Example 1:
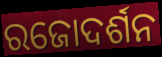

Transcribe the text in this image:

ରଜୋଦର୍ଶନ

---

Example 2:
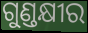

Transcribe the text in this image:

ଗୁଣ୍ଡକ୍ଷୀର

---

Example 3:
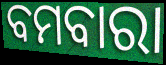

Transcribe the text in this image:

ବମବାରା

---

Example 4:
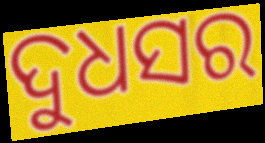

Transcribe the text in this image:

ଦୁଧସର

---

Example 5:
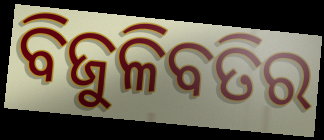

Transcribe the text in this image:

ବିଜୁଳିବତିର